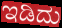
ಇಡಿದು